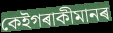
কেইগৰাকীমানৰ